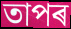
তাপৰ